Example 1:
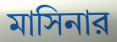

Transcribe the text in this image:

মাসিনার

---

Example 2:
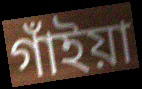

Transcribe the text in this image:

গাঁইয়া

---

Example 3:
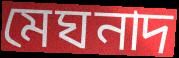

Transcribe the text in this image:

মেঘনাদ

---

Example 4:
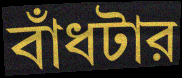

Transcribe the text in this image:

বাঁধটার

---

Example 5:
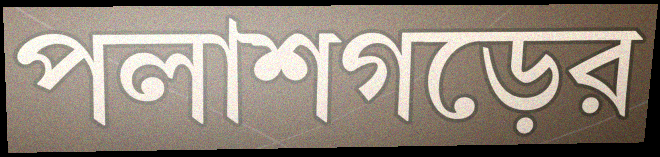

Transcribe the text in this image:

পলাশগড়ের